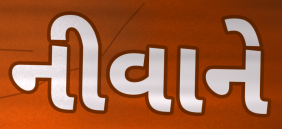
નીવાને